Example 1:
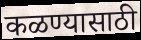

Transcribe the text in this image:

कळण्यासाठी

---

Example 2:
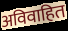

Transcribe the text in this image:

अविवाहित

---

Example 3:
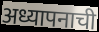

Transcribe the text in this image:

अध्यापनाची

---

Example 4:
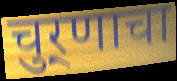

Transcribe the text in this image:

चुर्णाचा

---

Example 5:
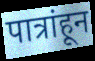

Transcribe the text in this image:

पात्रांहून